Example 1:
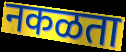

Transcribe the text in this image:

नकळता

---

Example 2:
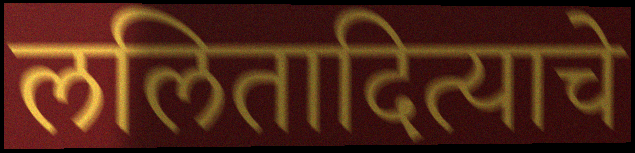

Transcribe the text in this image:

ललितादित्याचे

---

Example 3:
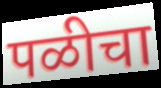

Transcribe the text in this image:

पळीचा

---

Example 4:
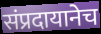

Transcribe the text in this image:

संप्रदायानेच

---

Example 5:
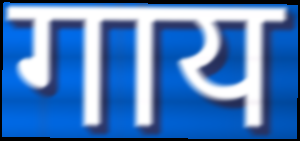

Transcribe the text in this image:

गाय